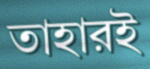
তাহারই